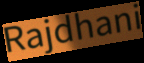
Rajdhani